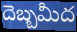
దెబ్బమీద